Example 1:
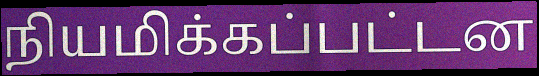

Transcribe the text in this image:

நியமிக்கப்பட்டன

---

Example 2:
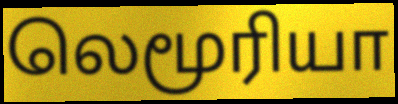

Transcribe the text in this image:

லெமூரியா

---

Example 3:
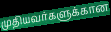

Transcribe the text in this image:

முதியவர்களுக்கான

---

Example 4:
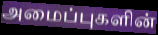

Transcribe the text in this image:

அமைப்புகளின்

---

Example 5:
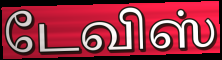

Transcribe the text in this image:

டேவிஸ்